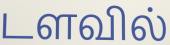
டளவில்